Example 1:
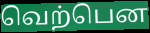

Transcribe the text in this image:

வெற்பென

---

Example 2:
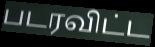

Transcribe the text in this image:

படரவிட்ட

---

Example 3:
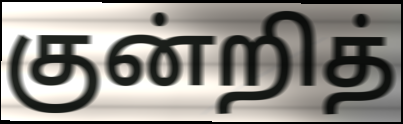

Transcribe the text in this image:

குன்றித்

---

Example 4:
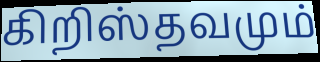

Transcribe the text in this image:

கிறிஸ்தவமும்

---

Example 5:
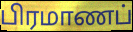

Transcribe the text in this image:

பிரமாணப்